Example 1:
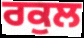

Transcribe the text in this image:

ਰਕੁਲ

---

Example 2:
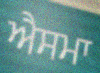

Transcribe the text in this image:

ਐਸਮਾ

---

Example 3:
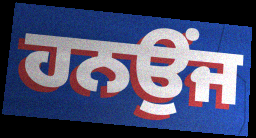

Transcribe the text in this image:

ਹਨਉਂਜ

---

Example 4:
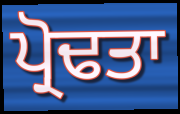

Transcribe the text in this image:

ਪ੍ਰੋਢਤਾ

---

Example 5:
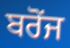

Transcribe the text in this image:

ਬਰੋਂਜ